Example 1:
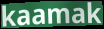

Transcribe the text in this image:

kaamak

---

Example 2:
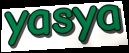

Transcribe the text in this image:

yasya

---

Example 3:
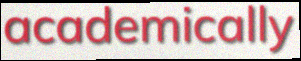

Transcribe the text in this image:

academically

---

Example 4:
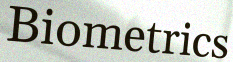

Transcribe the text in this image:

Biometrics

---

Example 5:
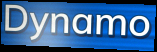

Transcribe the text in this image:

Dynamo